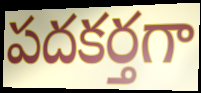
పదకర్తగా